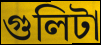
গুলিটা